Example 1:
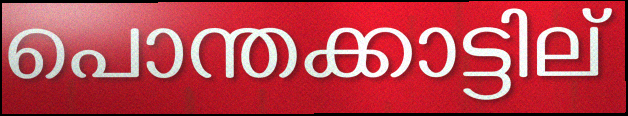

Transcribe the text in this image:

പൊന്തക്കാട്ടില്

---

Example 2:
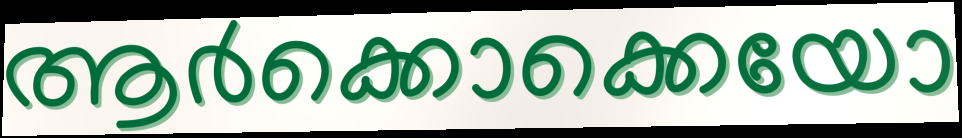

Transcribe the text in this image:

ആർക്കൊക്കെയോ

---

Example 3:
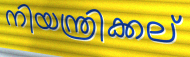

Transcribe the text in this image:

നിയന്ത്രിക്കല്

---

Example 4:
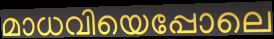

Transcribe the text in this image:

മാധവിയെപ്പോലെ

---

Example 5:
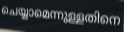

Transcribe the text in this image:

ചെയ്യാമെന്നുള്ളതിനെ